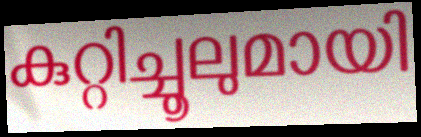
കുറ്റിച്ചൂലുമായി